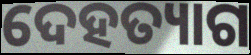
ଦେହତ୍ୟାଗ